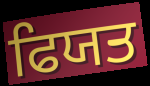
ਫਿਯਤ